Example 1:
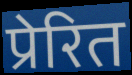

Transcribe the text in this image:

प्रेरित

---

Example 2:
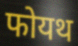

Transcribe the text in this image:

फोयथ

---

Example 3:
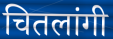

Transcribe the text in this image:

चितलांगी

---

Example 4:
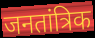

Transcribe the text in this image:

जनतांत्रिक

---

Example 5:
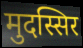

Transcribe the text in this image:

मुदस्सिर